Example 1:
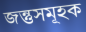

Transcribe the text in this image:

জন্তুসমূহক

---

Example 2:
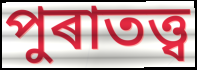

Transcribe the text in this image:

পুৰাতত্ত্ব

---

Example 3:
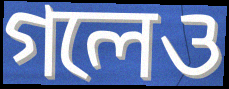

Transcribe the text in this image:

গলেও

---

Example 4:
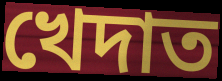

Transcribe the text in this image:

খেদাত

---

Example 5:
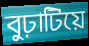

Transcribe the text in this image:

বুঢ়াটিয়ে